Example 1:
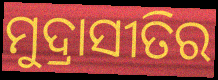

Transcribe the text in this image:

ମୁଦ୍ରାସୀତିର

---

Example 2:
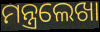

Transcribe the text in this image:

ମନ୍ତ୍ରଲେଖା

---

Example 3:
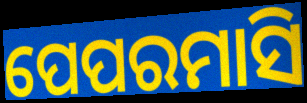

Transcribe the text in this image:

ପେପରମାସି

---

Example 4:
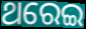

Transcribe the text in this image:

ଥରେଇ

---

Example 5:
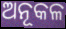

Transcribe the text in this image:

ଅନୂକଳ